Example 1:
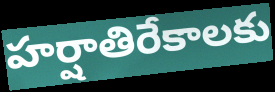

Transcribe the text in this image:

హర్షాతిరేకాలకు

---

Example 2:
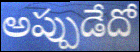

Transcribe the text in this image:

అప్పుడేదో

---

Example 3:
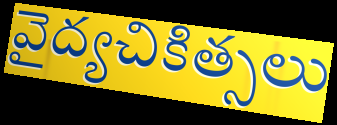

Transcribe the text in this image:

వైద్యచికిత్సలు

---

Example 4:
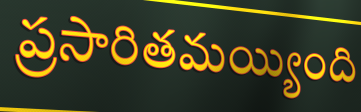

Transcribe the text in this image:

ప్రసారితమయ్యింది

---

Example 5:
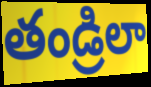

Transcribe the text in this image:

తండ్రిలా